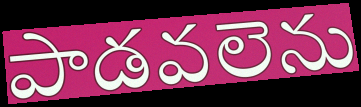
పాడవలెను